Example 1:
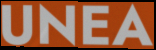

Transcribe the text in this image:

UNEA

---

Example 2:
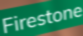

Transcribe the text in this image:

Firestone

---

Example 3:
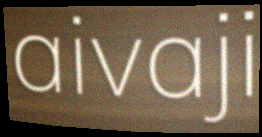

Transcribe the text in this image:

aivaji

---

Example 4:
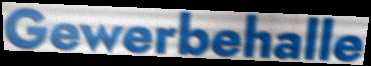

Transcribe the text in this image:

Gewerbehalle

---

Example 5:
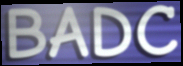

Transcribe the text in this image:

BADC